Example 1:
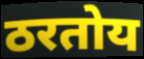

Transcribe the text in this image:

ठरतोय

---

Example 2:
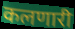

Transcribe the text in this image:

कलणारी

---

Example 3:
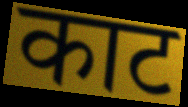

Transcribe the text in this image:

काट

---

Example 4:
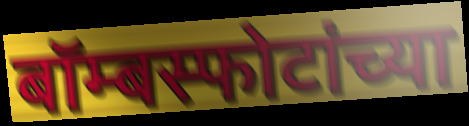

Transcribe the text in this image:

बॉम्बस्फोटांच्या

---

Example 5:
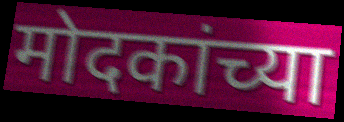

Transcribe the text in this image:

मोदकांच्या